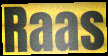
Raas